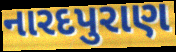
નારદપુરાણ